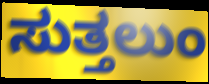
ಸುತ್ತಲುಂ